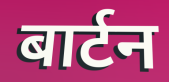
बार्टन